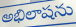
అభిలాషను